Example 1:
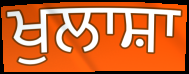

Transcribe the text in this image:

ਖੁਲਾਸ਼ਾ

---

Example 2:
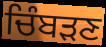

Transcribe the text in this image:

ਚਿੰਬੜਣ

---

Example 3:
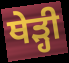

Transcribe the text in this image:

ਥੇੜ੍ਹੀ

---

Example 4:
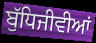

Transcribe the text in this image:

ਬੁੱਧਿਜੀਵੀਆਂ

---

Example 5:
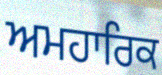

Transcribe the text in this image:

ਅਮਹਾਰਿਕ